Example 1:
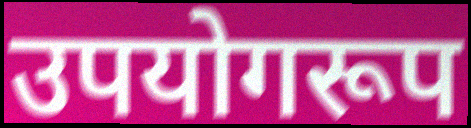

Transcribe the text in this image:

उपयोगरूप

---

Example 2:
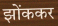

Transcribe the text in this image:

झोंककर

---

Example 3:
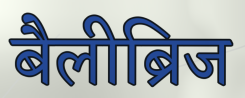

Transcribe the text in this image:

बैलीब्रिज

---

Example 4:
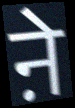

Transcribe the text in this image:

ऩे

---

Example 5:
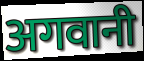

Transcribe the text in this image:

अगवानी